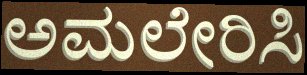
ಅಮಲೇರಿಸಿ